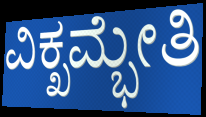
ವಿಕ್ಖಮ್ಭೇತಿ